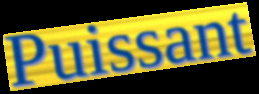
Puissant